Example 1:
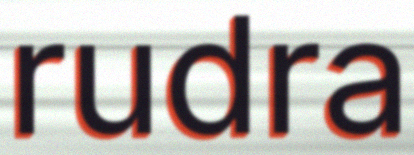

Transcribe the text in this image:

rudra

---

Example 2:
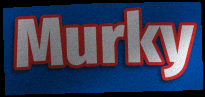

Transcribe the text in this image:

Murky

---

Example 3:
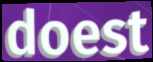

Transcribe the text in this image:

doest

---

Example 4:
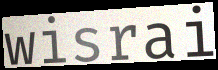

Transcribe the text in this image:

wisrai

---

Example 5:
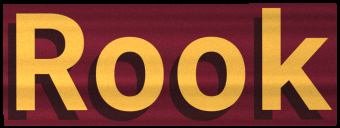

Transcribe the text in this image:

Rook